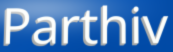
Parthiv